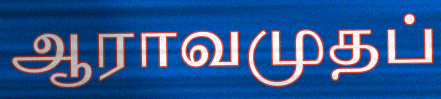
ஆராவமுதப்